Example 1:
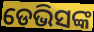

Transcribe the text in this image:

ଡେଭିସଙ୍କ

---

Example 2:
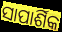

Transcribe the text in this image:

ସାପାର୍ଶିକ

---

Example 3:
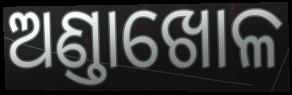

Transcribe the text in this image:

ଅଣ୍ଡାଖୋଳ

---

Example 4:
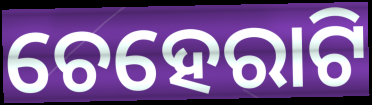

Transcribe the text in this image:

ଚେହେରାଟି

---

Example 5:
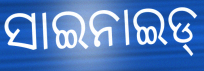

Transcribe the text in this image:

ସାଇନାଇଡ୍